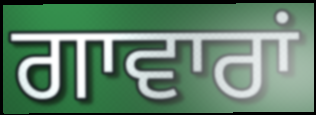
ਗਾਵਾਰਾਂ